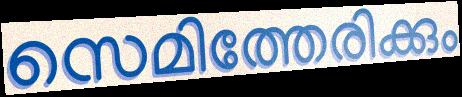
സെമിത്തേരിക്കും